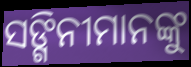
ସଙ୍ଗିନୀମାନଙ୍କୁ